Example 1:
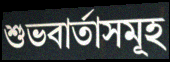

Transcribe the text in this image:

শুভবাৰ্তাসমূহ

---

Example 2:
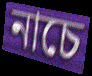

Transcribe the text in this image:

নাচে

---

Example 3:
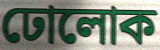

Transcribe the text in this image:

ঢোলোক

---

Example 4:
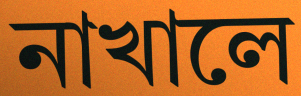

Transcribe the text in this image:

নাখালে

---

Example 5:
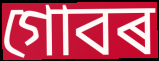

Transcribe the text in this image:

গোবৰ